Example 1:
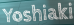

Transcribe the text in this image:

Yoshiaki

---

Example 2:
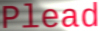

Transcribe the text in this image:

Plead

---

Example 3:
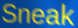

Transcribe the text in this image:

Sneak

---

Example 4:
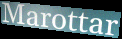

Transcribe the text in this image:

Marottar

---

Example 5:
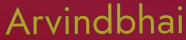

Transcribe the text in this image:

Arvindbhai